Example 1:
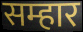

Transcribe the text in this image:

सम्हार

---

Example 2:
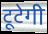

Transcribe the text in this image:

टूटेगी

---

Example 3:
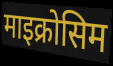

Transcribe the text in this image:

माइक्रोसिम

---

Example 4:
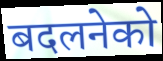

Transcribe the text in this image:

बदलनेको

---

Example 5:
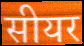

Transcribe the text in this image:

सीयर